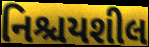
નિશ્ચયશીલ